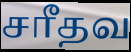
சரீதவ